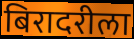
बिरादरीला